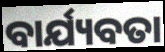
ବାର୍ଯ୍ୟବତା